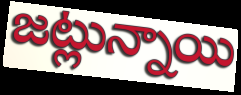
జట్లున్నాయి